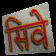
सिवे